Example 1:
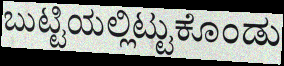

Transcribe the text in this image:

ಬುಟ್ಟಿಯಲ್ಲಿಟ್ಟುಕೊಂಡು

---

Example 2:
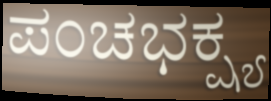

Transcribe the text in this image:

ಪಂಚಭಕ್ಷ್ಯ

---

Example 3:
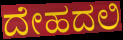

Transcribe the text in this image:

ದೇಹದಲಿ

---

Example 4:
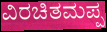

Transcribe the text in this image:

ವಿರಚಿತಮಪ್ಪ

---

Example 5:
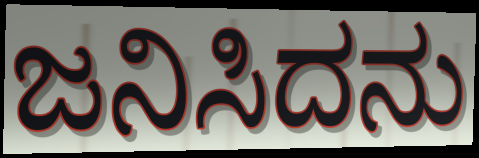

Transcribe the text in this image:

ಜನಿಸಿದನು